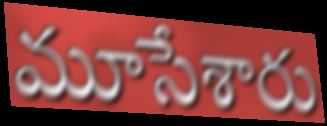
మూసేశారు